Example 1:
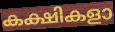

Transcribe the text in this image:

കക്ഷികളാ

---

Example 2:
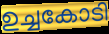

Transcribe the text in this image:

ഉച്ചകോടി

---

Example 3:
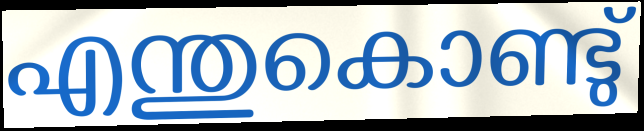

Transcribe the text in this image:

എന്തുകൊണ്ടു്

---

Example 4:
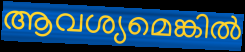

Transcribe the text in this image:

ആവശ്യമെങ്കിൽ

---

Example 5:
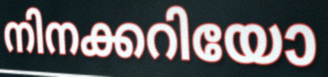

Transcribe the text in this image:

നിനക്കറിയോ